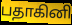
பதாகினி